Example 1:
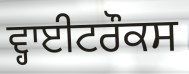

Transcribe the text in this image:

ਵ੍ਹਾਈਟਰੌਕਸ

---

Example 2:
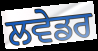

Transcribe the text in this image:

ਲਵੇਡਰ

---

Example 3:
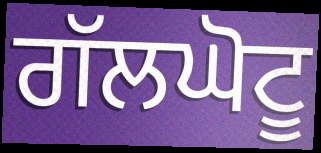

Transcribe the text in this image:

ਗੱਲਘੋਟੂ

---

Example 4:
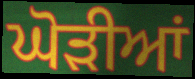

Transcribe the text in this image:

ਘੋੜੀਆਂ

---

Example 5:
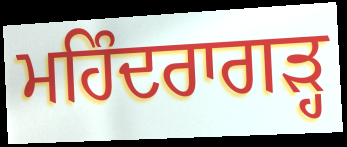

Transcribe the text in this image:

ਮਹਿੰਦਰਾਗੜ੍ਹ